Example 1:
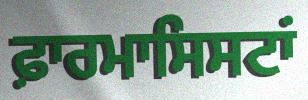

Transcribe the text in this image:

ਫ਼ਾਰਮਾਸਿਸਟਾਂ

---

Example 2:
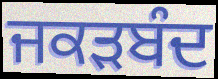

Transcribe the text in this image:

ਜਕੜਬੰਦ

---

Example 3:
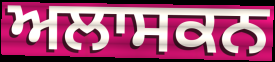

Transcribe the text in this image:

ਅਲਾਸਕਨ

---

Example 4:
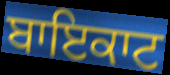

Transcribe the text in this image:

ਬਾਇਕਾਟ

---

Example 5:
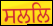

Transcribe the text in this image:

ਸਲਲਿ